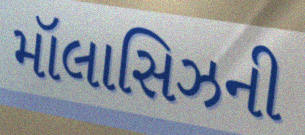
મૉલાસિઝની